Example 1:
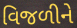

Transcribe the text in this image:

વિજળીને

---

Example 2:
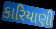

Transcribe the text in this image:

કારિયાણી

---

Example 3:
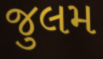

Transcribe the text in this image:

જુલમ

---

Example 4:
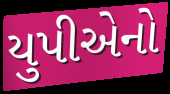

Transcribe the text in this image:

યુપીએનો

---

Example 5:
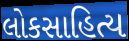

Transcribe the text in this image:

લોકસાહિત્ય